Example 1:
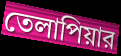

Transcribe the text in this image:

তেলাপিয়ার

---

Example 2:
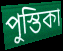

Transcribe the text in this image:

পুস্তিকা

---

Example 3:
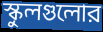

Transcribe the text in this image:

স্কুলগুলোর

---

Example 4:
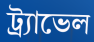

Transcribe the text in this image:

ট্র্যাভেল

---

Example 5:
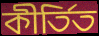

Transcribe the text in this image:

কীর্তিত